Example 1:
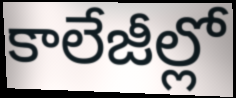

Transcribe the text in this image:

కాలేజీల్లో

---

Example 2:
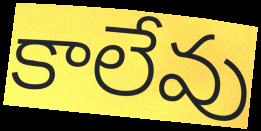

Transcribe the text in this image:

కాలేవు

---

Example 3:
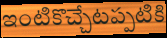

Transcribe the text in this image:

ఇంటికొచ్చేటప్పటికి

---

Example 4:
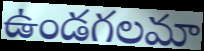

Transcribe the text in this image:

ఉండగలమా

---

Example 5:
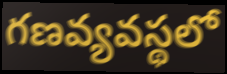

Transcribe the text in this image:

గణవ్యవస్థలో